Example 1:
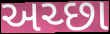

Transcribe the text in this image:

અચ્છા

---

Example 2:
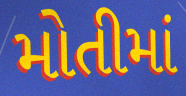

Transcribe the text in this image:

મોતીમાં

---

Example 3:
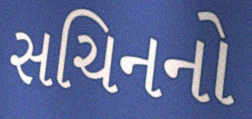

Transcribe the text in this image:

સચિનનો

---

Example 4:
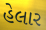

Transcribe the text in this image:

હેલાર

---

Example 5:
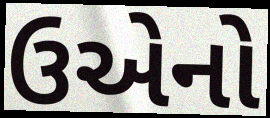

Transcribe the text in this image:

ઉએનો